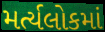
મર્ત્યલોકમાં